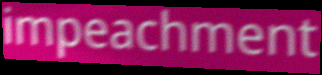
impeachment